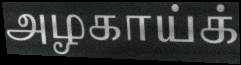
அழகாய்க்